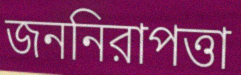
জননিরাপত্তা